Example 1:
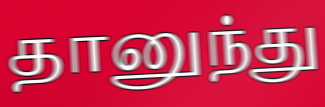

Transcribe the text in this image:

தானுந்து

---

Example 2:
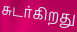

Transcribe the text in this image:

சுடர்கிறது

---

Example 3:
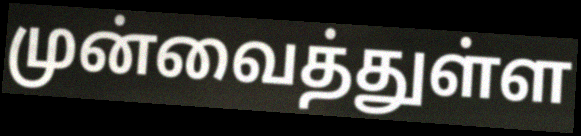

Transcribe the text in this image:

முன்வைத்துள்ள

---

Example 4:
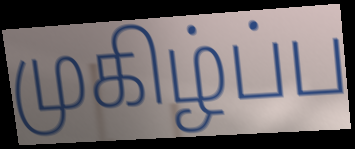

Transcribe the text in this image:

முகிழ்ப்ப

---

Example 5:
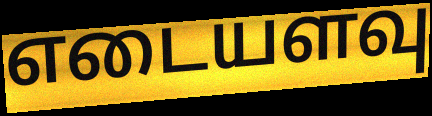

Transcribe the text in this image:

எடையளவு